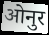
ओनुर